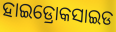
ହାଇଡ୍ରୋକସାଇଡ